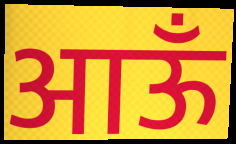
आऊँ